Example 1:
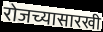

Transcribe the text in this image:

रोजच्यासारखी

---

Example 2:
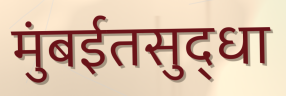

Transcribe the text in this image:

मुंबईतसुद्धा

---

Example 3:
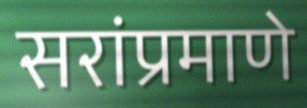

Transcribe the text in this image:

सरांप्रमाणे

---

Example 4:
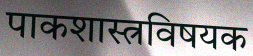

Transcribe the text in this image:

पाकशास्त्रविषयक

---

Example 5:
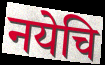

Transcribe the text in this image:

नयेचि